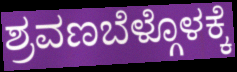
ಶ್ರವಣಬೆಳ್ಗೊಳಕ್ಕೆ